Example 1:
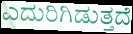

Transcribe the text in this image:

ಎದುರಿಗಿಡುತ್ತದೆ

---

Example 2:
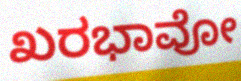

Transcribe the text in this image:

ಖರಭಾವೋ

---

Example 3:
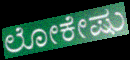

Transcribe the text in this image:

ಲೋಕೇಷು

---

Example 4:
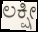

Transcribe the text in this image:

ಲಕ್ಷೀ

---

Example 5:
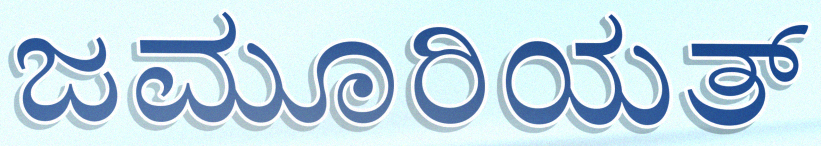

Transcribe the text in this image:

ಜಮೂರಿಯತ್